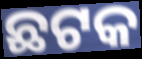
ଛଟକ